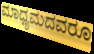
ಮಾಧ್ಯಮದವರೂ